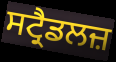
ਸਟ੍ਰੈਡਲਜ਼